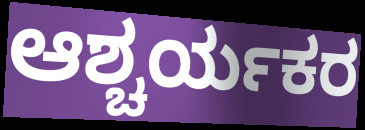
ಆಶ್ಚರ್ಯಕರ